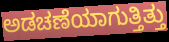
ಅಡಚಣೆಯಾಗುತ್ತಿತ್ತು